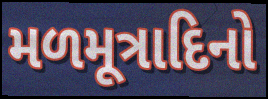
મળમૂત્રાદિનો